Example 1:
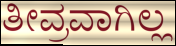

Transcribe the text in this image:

ತೀವ್ರವಾಗಿಲ್ಲ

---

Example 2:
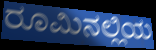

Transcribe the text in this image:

ರೂಮಿನಲ್ಲಿಯ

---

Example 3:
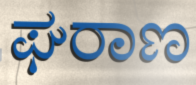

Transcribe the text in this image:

ಘರಾಣ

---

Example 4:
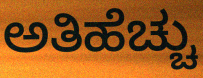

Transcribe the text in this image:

ಅತಿಹೆಚ್ಚು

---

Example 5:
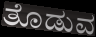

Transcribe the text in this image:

ತೊಡುವ